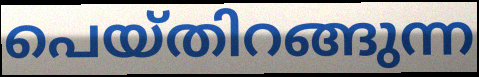
പെയ്തിറങ്ങുന്ന